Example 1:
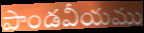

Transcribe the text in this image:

పాండవీయము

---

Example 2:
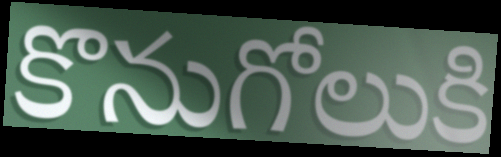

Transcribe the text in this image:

కొనుగోలుకి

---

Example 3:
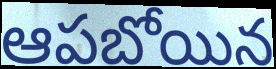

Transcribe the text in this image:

ఆపబోయిన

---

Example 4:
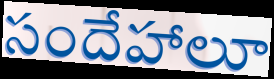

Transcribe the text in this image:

సందేహాలూ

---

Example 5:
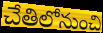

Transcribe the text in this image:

చేతిలోనుంచి